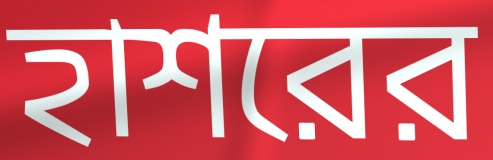
হাশরের